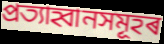
প্ৰত্যাহ্বানসমূহৰ